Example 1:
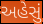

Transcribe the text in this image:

અહેસું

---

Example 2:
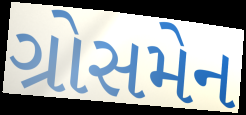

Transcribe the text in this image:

ગ્રોસમેન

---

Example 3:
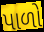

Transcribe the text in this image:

પાળો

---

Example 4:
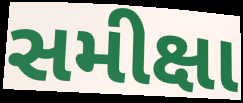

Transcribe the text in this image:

સમીક્ષા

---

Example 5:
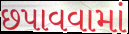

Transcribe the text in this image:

છપાવવામાં